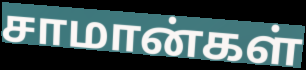
சாமான்கள்